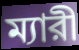
ম্যারী